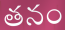
తనం